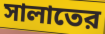
সালাতের